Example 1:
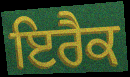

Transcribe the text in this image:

ਇਰੈਕ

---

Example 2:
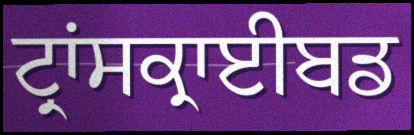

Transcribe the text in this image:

ਟ੍ਰਾਂਸਕ੍ਰਾਈਬਡ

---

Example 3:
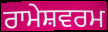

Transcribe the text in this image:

ਰਾਮੇਸ਼ਵਰਮ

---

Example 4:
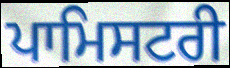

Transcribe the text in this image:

ਪਾਮਿਸਟਰੀ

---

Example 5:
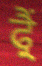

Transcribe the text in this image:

ਫ੍ਰੈਂ